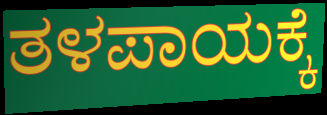
ತಳಪಾಯಕ್ಕೆ